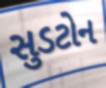
સુડટોન